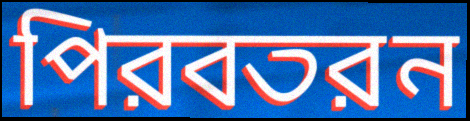
পিরবতরন